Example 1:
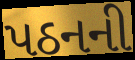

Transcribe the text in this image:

પઠનની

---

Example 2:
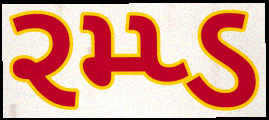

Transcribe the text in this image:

રમ્પ્ડ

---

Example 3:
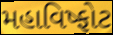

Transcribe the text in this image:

મહાવિષ્ફોટ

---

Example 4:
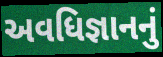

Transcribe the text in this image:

અવધિજ્ઞાનનું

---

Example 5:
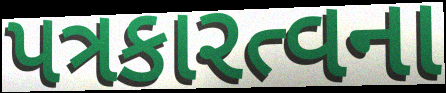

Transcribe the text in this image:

પત્રકારત્વના